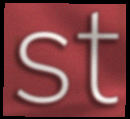
st